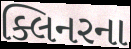
ક્લિનરના